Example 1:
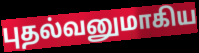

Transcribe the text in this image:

புதல்வனுமாகிய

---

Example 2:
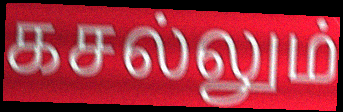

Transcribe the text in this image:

கசல்லும்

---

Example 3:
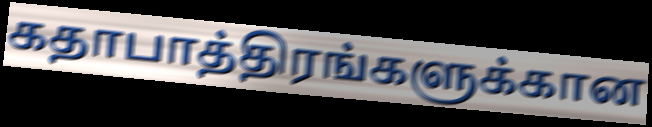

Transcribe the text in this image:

கதாபாத்திரங்களுக்கான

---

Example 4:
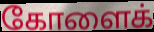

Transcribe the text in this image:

கோளைக்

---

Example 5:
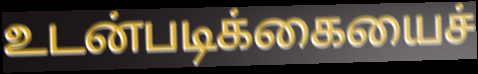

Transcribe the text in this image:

உடன்படிக்கையைச்